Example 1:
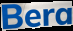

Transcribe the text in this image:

Bera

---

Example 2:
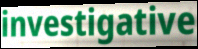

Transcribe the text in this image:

investigative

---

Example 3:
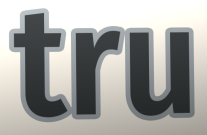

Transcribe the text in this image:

tru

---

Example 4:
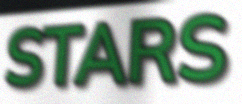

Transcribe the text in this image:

STARS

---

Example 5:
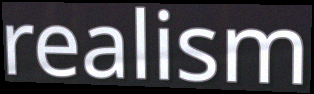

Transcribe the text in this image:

realism